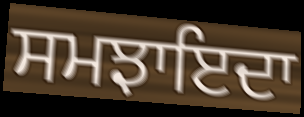
ਸਮਝਾਇਦਾ